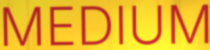
MEDIUM